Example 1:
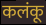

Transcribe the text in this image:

कलंकू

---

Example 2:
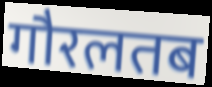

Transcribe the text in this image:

गौरलतब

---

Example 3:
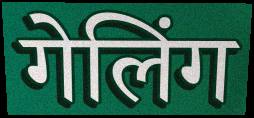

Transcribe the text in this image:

गेलिंग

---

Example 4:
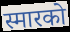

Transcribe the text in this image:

स्मारको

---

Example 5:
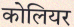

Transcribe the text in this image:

कोलियर